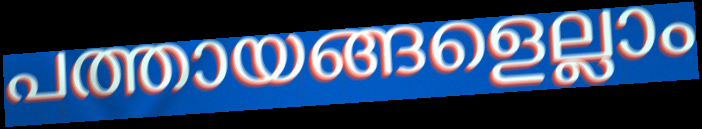
പത്തായങ്ങളെല്ലാം